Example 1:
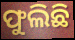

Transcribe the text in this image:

ଫୁଲିଛି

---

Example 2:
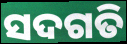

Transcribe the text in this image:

ସଦଗତି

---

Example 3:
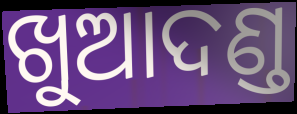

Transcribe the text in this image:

ଖୁଆଦଣ୍ଡ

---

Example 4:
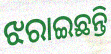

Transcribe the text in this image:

ଝରାଇଛନ୍ତି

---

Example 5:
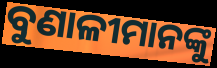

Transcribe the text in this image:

ବୁଣାଳୀମାନଙ୍କୁ